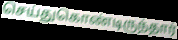
செய்துகொண்டிருந்தார்